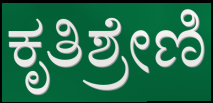
ಕೃತಿಶ್ರೇಣಿ